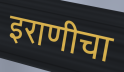
इराणीचा